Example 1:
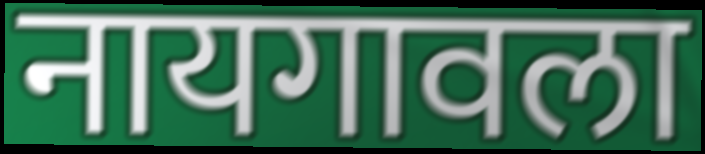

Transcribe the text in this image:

नायगावला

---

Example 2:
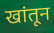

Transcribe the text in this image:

खांतून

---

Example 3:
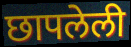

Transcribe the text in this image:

छापलेली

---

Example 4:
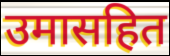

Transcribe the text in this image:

उमासहित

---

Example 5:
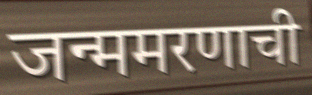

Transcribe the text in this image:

जन्ममरणाची